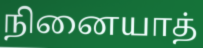
நினையாத்